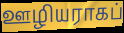
ஊழியராகப்